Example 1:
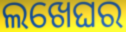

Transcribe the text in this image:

ଲଖେଘର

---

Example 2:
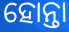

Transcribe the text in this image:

ହୋନ୍ତା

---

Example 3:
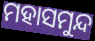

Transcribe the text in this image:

ମହାସମୁନ୍ଦ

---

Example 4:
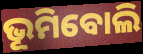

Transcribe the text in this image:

ଭୂମିବୋଲି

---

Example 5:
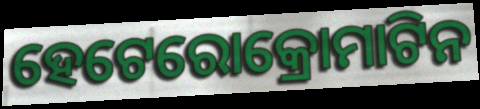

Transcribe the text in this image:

ହେଟେରୋକ୍ରୋମାଟିନ